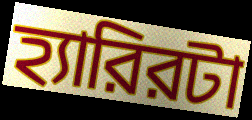
হ্যারিরটা